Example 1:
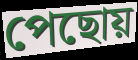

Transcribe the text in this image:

পেছোয়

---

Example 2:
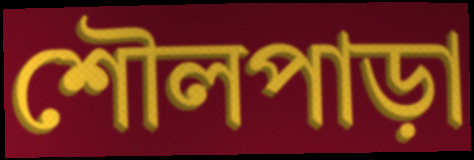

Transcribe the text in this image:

শৌলপাড়া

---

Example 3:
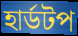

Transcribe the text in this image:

হার্ডটপ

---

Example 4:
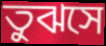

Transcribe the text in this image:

তুঝসে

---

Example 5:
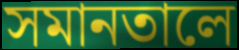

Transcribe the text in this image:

সমানতালে